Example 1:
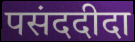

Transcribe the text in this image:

पसंददीदा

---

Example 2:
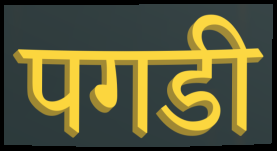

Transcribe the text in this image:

पगडी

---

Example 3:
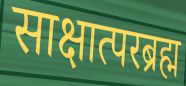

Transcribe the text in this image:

साक्षात्परब्रह्म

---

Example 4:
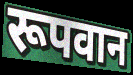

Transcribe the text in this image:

रूपवान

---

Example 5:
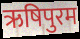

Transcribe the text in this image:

ऋषिपुरम